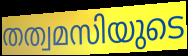
തത്വമസിയുടെ